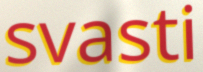
svasti